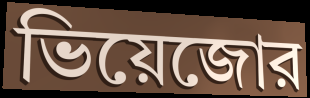
ভিয়েজোর